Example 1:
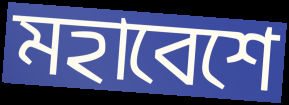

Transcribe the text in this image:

মহাবেশে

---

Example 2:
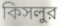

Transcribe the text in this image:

কিসলুর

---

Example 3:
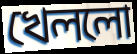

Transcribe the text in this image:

খেললো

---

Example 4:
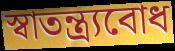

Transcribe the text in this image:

স্বাতন্ত্র্যবোধ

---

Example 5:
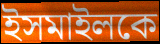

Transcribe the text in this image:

ইসমাইলকে